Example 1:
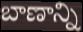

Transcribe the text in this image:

బాణాన్ని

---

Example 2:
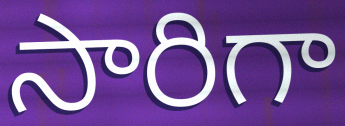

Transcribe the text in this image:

సారిగా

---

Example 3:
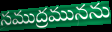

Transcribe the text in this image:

సముద్రమునను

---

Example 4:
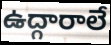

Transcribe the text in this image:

ఉద్గారాలే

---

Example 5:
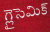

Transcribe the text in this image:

గ్లైసెమిక్